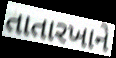
તાતારખાને